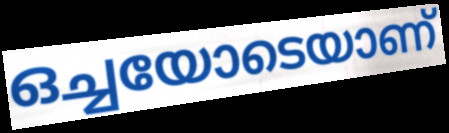
ഒച്ചയോടെയാണ്